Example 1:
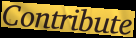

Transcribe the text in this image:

Contribute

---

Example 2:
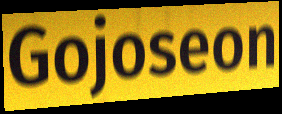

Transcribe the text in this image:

Gojoseon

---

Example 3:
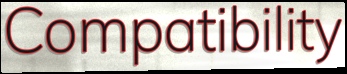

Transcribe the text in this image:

Compatibility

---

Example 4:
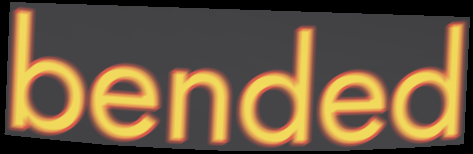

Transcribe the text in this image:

bended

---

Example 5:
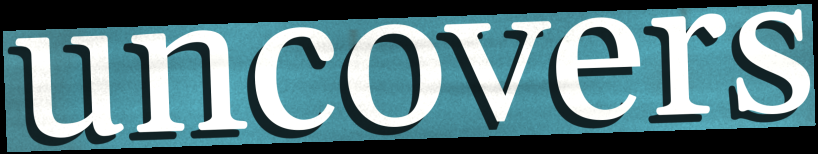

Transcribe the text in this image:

uncovers